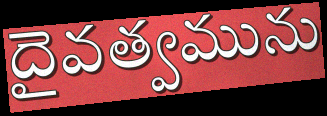
దైవత్వమును